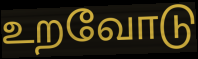
உறவோடு